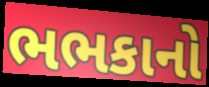
ભભકાનો